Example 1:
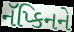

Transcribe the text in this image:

નૅપ્કિનને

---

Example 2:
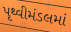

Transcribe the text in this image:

પૃથ્વીમંડલમાં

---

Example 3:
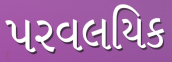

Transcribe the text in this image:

પરવલયિક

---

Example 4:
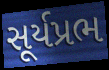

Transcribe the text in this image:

સૂર્યપ્રભ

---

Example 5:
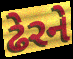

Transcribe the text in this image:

ઢેરને